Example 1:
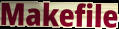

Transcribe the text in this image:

Makefile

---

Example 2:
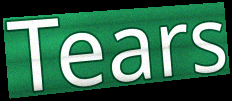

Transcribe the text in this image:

Tears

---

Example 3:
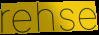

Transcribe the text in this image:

rehse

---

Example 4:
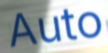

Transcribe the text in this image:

Auto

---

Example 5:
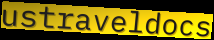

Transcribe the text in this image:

ustraveldocs